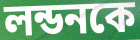
লন্ডনকে